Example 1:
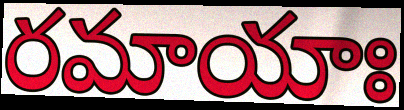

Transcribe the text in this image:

రమాయాః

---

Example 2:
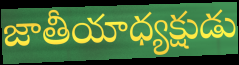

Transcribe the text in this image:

జాతీయాధ్యక్షుడు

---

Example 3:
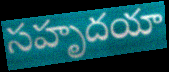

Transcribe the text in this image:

సహృదయా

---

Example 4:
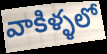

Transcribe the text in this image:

వాకిళ్ళలో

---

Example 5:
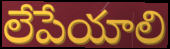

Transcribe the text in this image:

లేపేయాలి